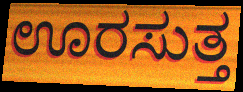
ಊರಸುತ್ತ